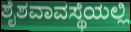
ಶೈಶವಾವಸ್ಥೆಯಲ್ಲಿ